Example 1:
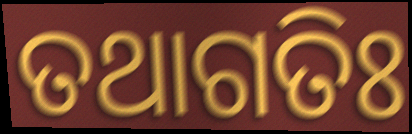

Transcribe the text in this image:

ତଥାଗତିଃ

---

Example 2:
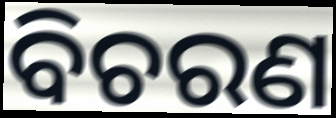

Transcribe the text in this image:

ବିଚରଣ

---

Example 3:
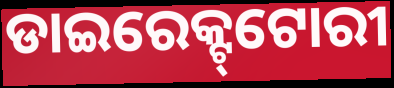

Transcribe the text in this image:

ଡାଇରେକ୍ଟ୍‌ଟୋରୀ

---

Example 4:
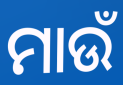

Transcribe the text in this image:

ମାଉଁ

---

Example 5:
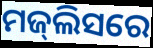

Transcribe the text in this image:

ମଜ୍‌ଲିସରେ